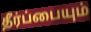
தீர்ப்பையும்